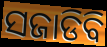
ସଜାଡିବି